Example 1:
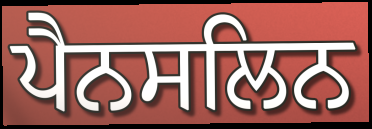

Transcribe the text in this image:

ਪੈਨਸਲਿਨ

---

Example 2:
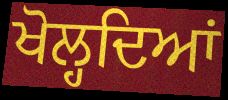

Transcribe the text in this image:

ਖੋਲ੍ਹਦਿਆਂ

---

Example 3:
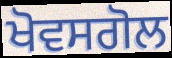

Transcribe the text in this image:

ਖੋਵਸਗੋਲ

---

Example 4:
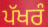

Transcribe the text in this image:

ਪੱਖਰੰ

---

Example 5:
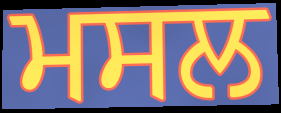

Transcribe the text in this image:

ਮਸਲ